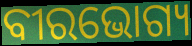
ବୀରଭୋଗ୍ୟ